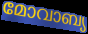
മോവാബ്യ